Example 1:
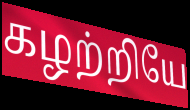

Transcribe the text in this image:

கழற்றியே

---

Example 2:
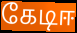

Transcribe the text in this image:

கேடிஈ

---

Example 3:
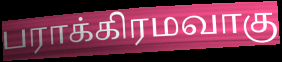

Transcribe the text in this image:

பராக்கிரமவாகு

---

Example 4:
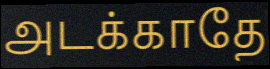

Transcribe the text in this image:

அடக்காதே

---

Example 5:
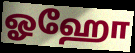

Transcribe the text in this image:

ஓஹோ